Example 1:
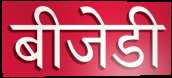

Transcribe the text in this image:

बीजेडी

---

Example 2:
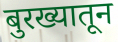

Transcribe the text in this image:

बुरख्यातून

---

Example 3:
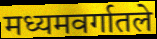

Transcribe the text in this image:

मध्यमवर्गातले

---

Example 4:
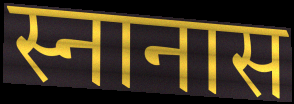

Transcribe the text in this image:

स्नानास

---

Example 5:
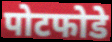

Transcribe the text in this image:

पोटफोडे